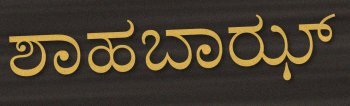
ಶಾಹಬಾಝ್